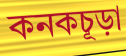
কনকচূড়া